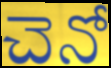
చెనో